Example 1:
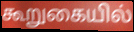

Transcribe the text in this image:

கூறுகையில்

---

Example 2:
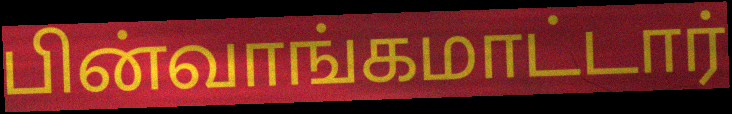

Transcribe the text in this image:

பின்வாங்கமாட்டார்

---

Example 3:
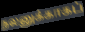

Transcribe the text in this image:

நலனுக்காகப்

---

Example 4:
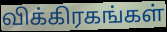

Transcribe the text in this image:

விக்கிரகங்கள்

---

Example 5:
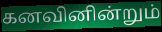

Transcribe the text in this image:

கனவினின்றும்